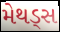
મેથડ્સ